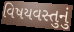
વિષયવસ્તુનું